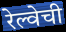
रेल्वेची